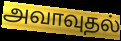
அவாவுதல்